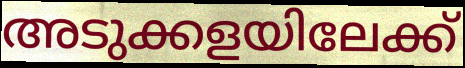
അടുക്കളയിലേക്ക്